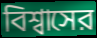
বিশ্বাসের